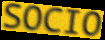
SOCIO